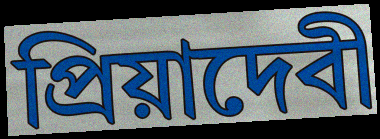
প্রিয়াদেবী